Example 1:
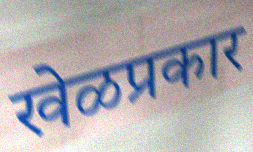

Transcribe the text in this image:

खेळप्रकार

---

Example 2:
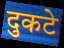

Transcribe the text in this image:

दुकटे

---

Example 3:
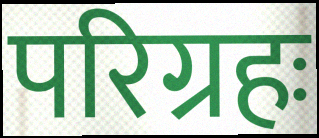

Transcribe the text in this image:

परिग्रहः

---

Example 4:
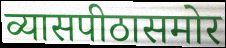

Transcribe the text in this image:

व्यासपीठासमोर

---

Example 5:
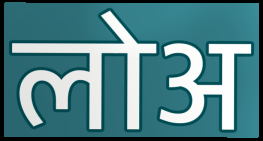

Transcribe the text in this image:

लोअ